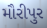
મૌરીપુર